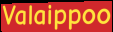
Valaippoo